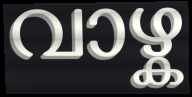
വാഴ്ക